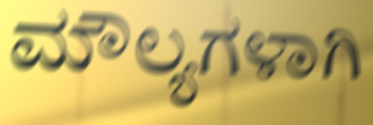
ಮೌಲ್ಯಗಳಾಗಿ